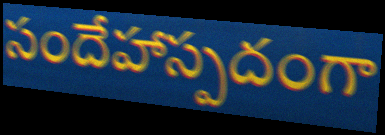
సందేహాస్పదంగా